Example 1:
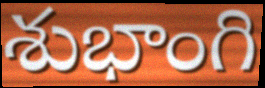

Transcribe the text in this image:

శుభాంగి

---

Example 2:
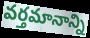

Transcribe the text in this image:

వర్తమానాన్ని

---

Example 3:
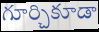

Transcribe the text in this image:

గూర్చికూడా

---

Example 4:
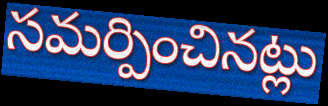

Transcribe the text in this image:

సమర్పించినట్లు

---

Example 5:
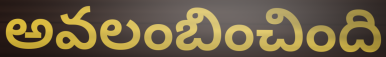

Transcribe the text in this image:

అవలంబించింది